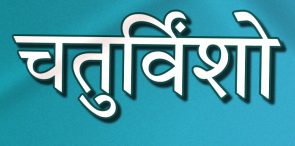
चतुर्विंशो